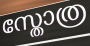
സ്തോത്ര